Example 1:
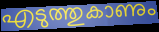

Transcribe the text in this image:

എടുത്തുകാണും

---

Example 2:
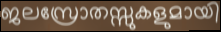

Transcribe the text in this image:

ജലസ്രോതസ്സുകളുമായി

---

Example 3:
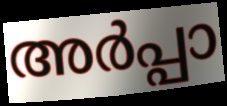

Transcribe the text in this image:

അർപ്പാ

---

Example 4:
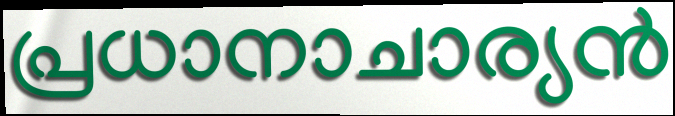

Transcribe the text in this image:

പ്രധാനാചാര്യൻ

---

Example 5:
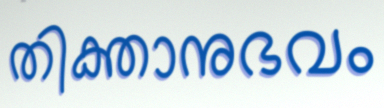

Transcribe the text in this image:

തിക്താനുഭവം